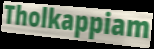
Tholkappiam